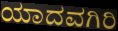
ಯಾದವಗಿರಿ